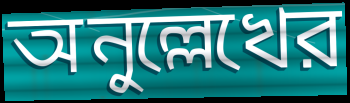
অনুল্লেখের